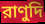
রাণুদি